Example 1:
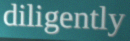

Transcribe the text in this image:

diligently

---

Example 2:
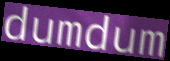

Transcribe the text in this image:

dumdum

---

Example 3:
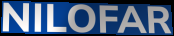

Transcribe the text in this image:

NILOFAR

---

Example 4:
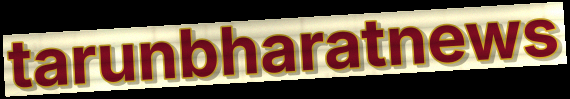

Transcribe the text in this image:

tarunbharatnews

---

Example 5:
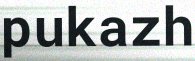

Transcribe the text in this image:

pukazh